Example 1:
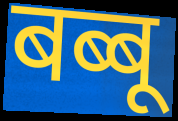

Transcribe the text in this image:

बब्बू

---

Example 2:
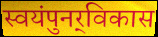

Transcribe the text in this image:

स्वयंपुनर्विकास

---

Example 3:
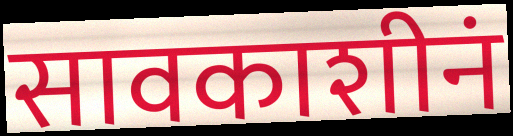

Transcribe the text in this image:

सावकाशीनं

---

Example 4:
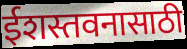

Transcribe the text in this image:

ईशस्तवनासाठी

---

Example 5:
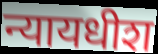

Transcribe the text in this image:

न्यायधीश